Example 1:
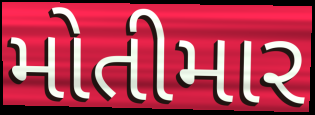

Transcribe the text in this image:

મોતીમાર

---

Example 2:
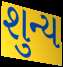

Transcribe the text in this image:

શુન્ય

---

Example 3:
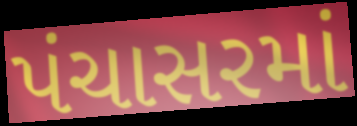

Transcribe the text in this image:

પંચાસરમાં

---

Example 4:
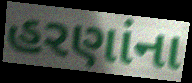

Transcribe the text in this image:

હરણાંના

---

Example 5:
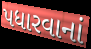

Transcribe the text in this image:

પધારવાનાં